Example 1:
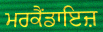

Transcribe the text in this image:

ਮਰਕੈਂਡਾਇਜ਼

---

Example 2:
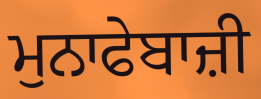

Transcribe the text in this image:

ਮੁਨਾਫੇਬਾਜ਼ੀ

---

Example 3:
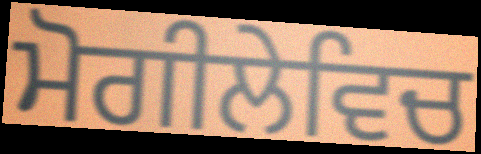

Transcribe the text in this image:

ਮੋਗੀਲੇਵਿਚ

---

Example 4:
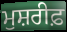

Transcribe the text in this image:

ਮੁਸ਼ਰੀਫ਼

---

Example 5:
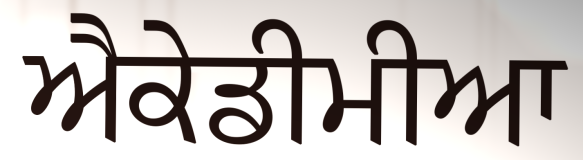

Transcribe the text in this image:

ਐਕੇਡੀਮੀਆ